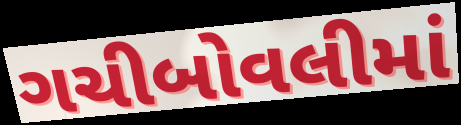
ગચીબોવલીમાં